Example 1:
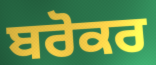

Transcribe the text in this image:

ਬਰੋਕਰ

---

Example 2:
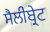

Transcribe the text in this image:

ਸੈਲੀਬ੍ਰੇਟ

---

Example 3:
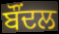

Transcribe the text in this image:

ਬੌਂਦਲ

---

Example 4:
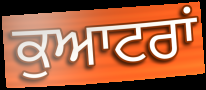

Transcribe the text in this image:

ਕੁਆਟਰਾਂ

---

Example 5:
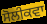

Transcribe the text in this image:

ਸੋਲੀਕਵਾ